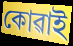
কোৱাই